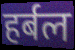
हर्बल